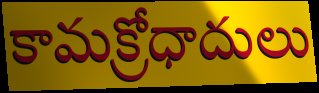
కామక్రోధాదులు